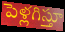
పెళ్లగిస్తూ